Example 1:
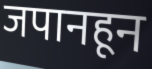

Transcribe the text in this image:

जपानहून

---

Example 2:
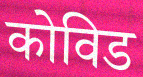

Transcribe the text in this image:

कोविड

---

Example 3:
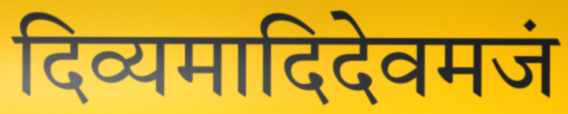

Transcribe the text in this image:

दिव्यमादिदेवमजं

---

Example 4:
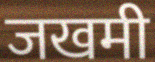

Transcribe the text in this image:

जखमी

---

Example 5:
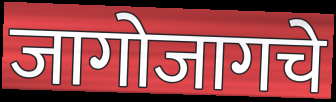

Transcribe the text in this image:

जागोजागचे